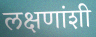
लक्षणांशी